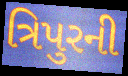
ત્રિપુરની